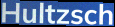
Hultzsch